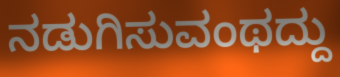
ನಡುಗಿಸುವಂಥದ್ದು